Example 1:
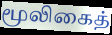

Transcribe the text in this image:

மூலிகைத்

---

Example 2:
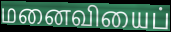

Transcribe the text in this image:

மனைவியைப்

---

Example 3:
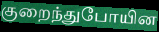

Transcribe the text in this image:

குறைந்துபோயின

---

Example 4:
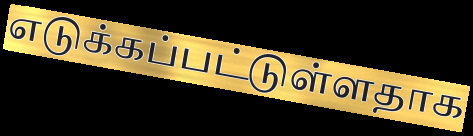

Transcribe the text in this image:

எடுக்கப்பட்டுள்ளதாக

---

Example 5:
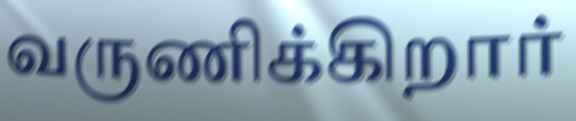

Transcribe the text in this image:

வருணிக்கிறார்